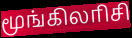
மூங்கிலரிசி